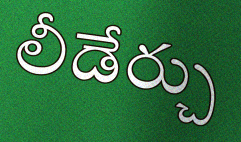
లీడేర్చు